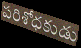
పరిశోధకుడు